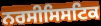
ਨਰਸੀਸਿਸਟਿਕ